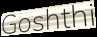
Goshthi